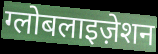
ग्लोबलाइज़ेशन